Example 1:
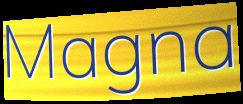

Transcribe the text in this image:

Magna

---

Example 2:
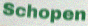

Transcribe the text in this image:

Schopen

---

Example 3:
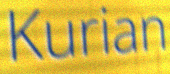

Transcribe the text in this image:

Kurian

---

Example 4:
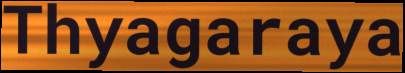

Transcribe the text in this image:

Thyagaraya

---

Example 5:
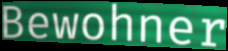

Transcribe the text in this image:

Bewohner